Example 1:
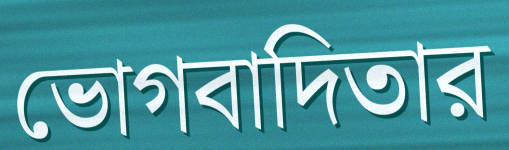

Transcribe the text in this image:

ভোগবাদিতার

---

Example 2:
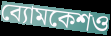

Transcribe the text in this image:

ব্যোমকেশও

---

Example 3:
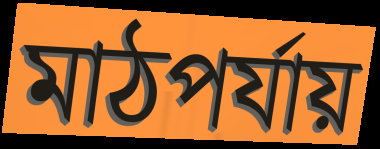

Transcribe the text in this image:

মাঠপর্যায়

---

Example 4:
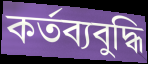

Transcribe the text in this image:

কর্তব্যবুদ্ধি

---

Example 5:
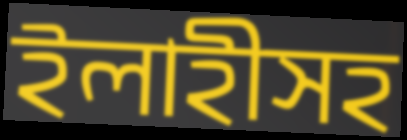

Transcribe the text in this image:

ইলাহীসহ